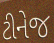
ટીનેજ